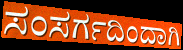
ಸಂಸರ್ಗದಿಂದಾಗಿ